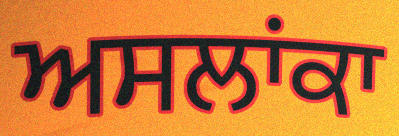
ਅਸਲਾਂਕਾ